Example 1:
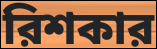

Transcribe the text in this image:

রিশকার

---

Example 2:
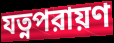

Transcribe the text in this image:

যত্নপরায়ণ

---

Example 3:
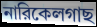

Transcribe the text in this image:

নারিকেলগাছ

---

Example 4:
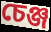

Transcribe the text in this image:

চেঞ্জ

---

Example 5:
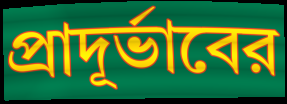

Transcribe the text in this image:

প্রাদূর্ভাবের